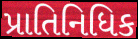
પ્રાતિનિધિક